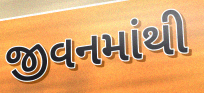
જીવનમાંથી